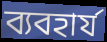
ব্যবহার্য